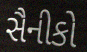
સૈનીકો